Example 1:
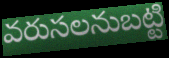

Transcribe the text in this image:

వరుసలనుబట్టి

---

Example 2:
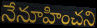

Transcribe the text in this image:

నేనూహించని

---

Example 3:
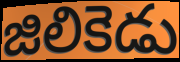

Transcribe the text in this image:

జిలికెడు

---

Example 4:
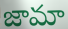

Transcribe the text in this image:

జామా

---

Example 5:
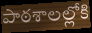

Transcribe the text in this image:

పాఠశాలల్లోకి